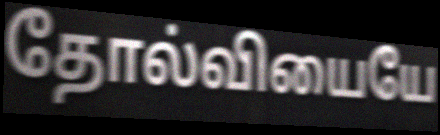
தோல்வியையே